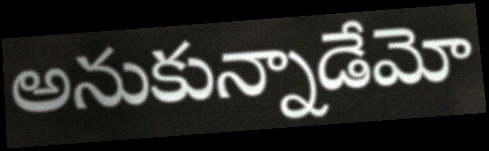
అనుకున్నాడేమో